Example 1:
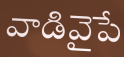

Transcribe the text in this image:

వాడివైపే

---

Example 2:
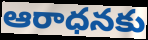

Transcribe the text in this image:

ఆరాధనకు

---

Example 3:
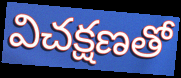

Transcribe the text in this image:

విచక్షణతో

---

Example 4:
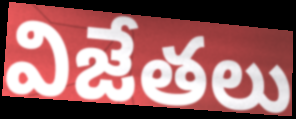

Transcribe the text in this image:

విజేతలు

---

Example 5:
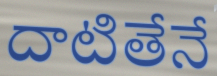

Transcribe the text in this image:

దాటితేనే